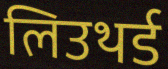
लिउथर्ड